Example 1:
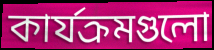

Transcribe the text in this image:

কার্যক্রমগুলো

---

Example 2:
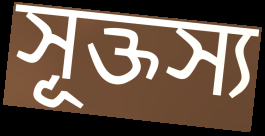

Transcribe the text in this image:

সূক্তস্য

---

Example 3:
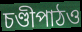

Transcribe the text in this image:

চণ্ডীপাঠও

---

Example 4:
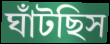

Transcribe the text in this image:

ঘাঁটছিস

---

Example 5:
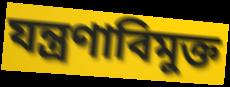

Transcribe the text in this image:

যন্ত্রণাবিমুক্ত